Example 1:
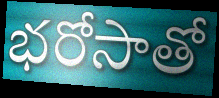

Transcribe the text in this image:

భరోసాతో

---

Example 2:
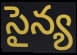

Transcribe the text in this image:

సైన్య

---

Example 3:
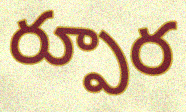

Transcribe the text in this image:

ర్పూర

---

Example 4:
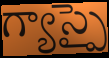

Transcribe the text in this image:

గ్యాస్పై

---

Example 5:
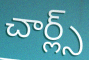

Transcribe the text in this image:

చార్ల్స్